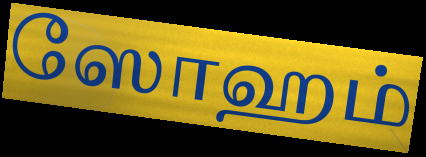
ஸோஹம்